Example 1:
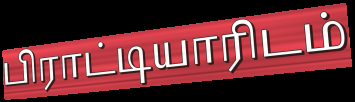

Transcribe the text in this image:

பிராட்டியாரிடம்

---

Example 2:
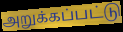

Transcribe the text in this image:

அறுக்கப்பட்டு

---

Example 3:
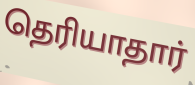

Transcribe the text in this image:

தெரியாதார்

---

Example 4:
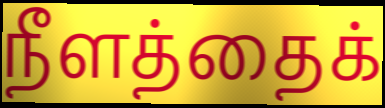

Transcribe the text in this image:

நீளத்தைக்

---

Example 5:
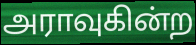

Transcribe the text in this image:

அராவுகின்ற